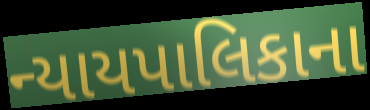
ન્યાયપાલિકાના